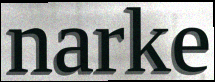
narke